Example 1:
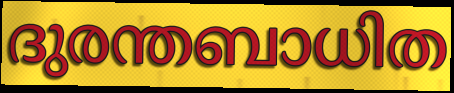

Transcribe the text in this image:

ദുരന്തബാധിത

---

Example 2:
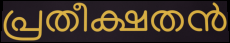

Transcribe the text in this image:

പ്രതീക്ഷതൻ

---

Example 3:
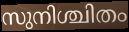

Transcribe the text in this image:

സുനിശ്ചിതം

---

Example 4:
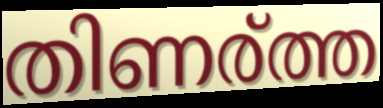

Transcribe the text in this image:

തിണര്ത്ത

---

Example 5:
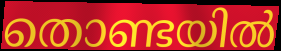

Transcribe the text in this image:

തൊണ്ടയിൽ